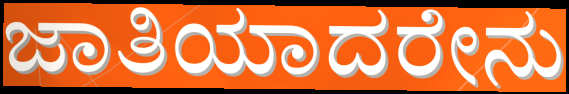
ಜಾತಿಯಾದರೇನು